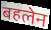
बहलेन